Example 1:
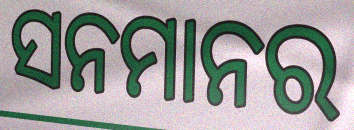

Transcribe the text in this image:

ସନମାନର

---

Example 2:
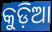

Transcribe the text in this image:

କୁଡ଼ିଆ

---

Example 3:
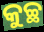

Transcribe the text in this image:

କୁଚ୍ଛ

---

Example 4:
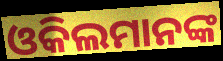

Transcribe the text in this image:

ଓକିଲମାନଙ୍କ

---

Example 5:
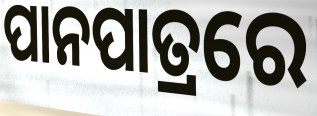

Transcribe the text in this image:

ପାନପାତ୍ରରେ